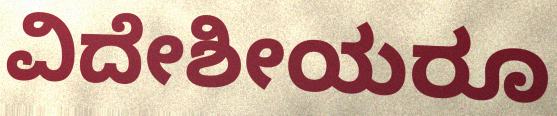
ವಿದೇಶೀಯರೂ